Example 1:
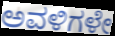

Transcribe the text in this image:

ಅವಳಿಗಳೇ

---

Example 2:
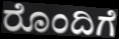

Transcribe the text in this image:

ರೊಂದಿಗೆ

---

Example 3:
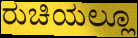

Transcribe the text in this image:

ರುಚಿಯಲ್ಲೂ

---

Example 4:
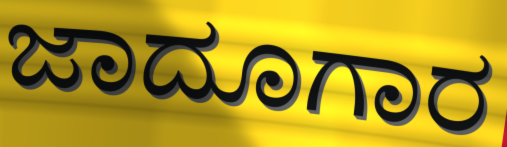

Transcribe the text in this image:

ಜಾದೂಗಾರ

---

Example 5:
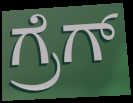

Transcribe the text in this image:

ಗ್ರೆಗ್